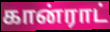
கான்ராட்